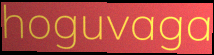
hoguvaga